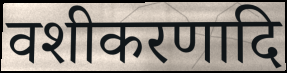
वशीकरणादि